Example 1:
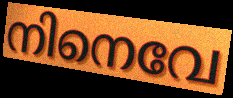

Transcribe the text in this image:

നിനെവേ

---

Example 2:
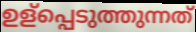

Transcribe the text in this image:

ഉള്പ്പെടുത്തുന്നത്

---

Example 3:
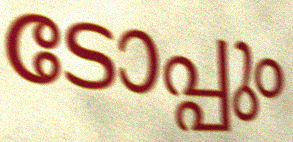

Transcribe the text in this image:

ടോപ്പും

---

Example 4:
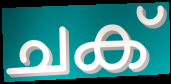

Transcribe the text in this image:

ചക്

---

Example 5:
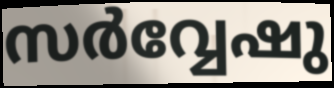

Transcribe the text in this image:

സർവ്വേഷു